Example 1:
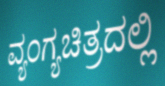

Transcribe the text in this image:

ವ್ಯಂಗ್ಯಚಿತ್ರದಲ್ಲಿ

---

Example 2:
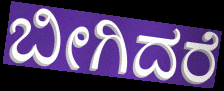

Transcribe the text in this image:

ಬೀಗಿದರೆ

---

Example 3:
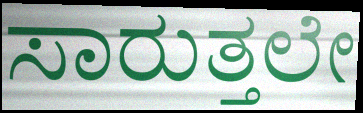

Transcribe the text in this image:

ಸಾರುತ್ತಲೇ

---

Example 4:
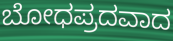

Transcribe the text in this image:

ಬೋಧಪ್ರದವಾದ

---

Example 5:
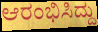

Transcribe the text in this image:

ಆರಂಭಿಸಿದ್ದು